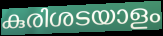
കുരിശടയാളം